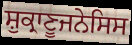
ਸ਼ੁਕ੍ਰਾਣੂਜਨੇਸਿਸ